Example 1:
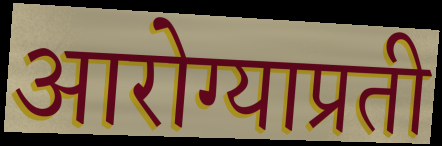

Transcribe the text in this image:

आरोग्याप्रती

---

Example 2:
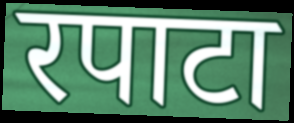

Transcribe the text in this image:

रपाटा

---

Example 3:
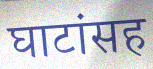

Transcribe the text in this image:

घाटांसह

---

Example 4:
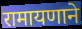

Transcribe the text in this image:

रामायणाने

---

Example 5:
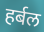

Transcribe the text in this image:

हर्बल